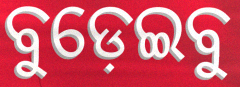
ବୁଡ଼େଇବୁ